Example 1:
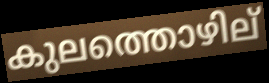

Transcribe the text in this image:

കുലത്തൊഴില്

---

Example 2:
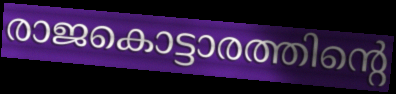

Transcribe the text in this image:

രാജകൊട്ടാരത്തിന്റെ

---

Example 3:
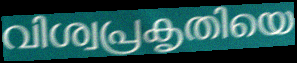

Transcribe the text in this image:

വിശ്വപ്രകൃതിയെ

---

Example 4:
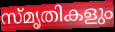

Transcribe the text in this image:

സ്മൃതികളും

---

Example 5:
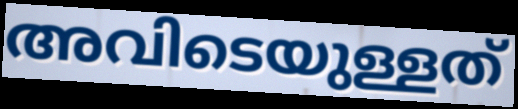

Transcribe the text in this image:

അവിടെയുള്ളത്